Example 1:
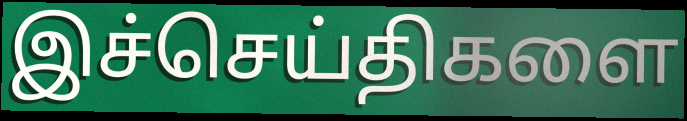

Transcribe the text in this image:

இச்செய்திகளை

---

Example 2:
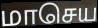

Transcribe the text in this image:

மாசெய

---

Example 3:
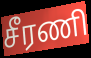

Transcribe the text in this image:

சீரணி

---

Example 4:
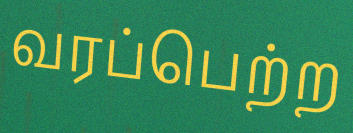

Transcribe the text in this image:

வரப்பெற்ற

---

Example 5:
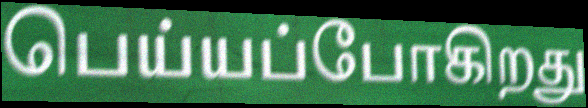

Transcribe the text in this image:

பெய்யப்போகிறது